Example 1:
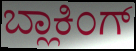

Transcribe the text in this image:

ಬ್ಲಾಕಿಂಗ್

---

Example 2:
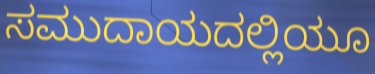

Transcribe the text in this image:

ಸಮುದಾಯದಲ್ಲಿಯೂ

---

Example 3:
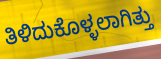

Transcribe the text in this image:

ತಿಳಿದುಕೊಳ್ಳಲಾಗಿತ್ತು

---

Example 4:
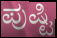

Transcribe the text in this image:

ಪುಷ್ಟಿ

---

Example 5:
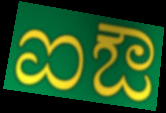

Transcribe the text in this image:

ಐಔ